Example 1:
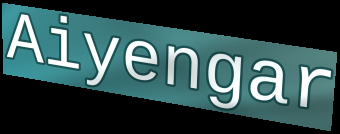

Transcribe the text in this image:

Aiyengar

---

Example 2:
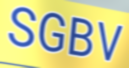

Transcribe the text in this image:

SGBV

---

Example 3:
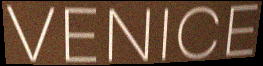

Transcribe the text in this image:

VENICE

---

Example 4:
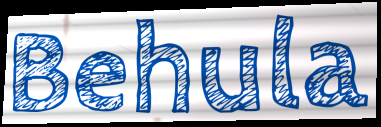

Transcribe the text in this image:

Behula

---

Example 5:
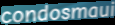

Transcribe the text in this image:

condosmaui